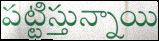
పట్టిస్తున్నాయి